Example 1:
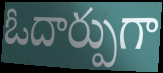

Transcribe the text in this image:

ఓదార్పుగా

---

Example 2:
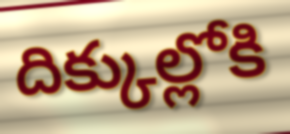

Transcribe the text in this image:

దిక్కుల్లోకి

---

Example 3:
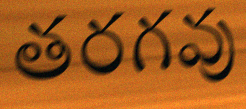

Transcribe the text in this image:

తరగవు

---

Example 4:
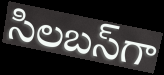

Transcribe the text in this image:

సిలబస్‌గా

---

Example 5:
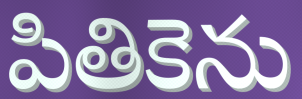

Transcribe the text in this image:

పితికెను